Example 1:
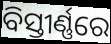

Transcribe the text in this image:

ବିସ୍ତୀର୍ଣ୍ଣରେ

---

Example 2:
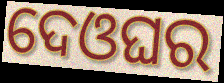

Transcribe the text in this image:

ଦେଓଘର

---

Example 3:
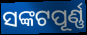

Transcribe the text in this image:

ସଙ୍କଟପୂର୍ଣ୍ଣ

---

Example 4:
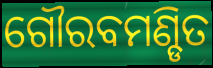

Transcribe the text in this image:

ଗୌରବମଣ୍ଡିତ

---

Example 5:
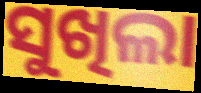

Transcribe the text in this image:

ସୁଖିଲା